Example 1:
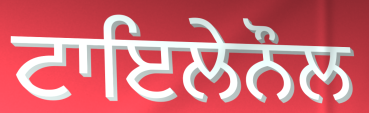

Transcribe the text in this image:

ਟਾਇਲੇਨੌਲ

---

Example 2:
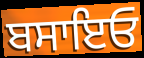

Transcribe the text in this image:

ਬਸਾਇਓ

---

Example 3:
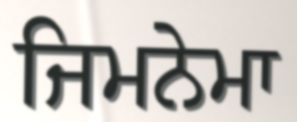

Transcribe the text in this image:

ਜਿਮਨੇਮਾ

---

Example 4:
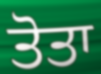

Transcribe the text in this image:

ਤੋਤਾ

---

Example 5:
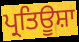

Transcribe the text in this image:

ਪ੍ਰਤਿਊਸ਼ਾ